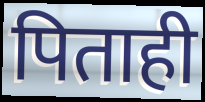
पिताही